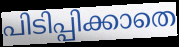
പിടിപ്പിക്കാതെ